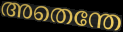
അതെന്തേ